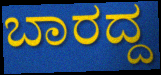
ಬಾರದ್ದ